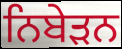
ਨਿਬੇੜਨ